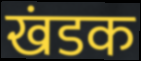
खंडक